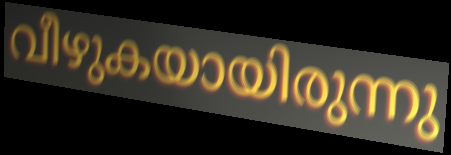
വീഴുകയായിരുന്നു